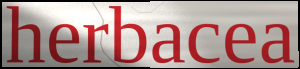
herbacea